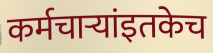
कर्मचाऱ्यांइतकेच